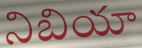
నిబియా